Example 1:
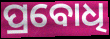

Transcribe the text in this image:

ପ୍ରବୋଧି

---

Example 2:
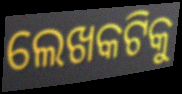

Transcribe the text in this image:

ଲେଖକଟିକୁ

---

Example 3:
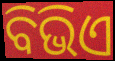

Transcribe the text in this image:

ବିଭିଏ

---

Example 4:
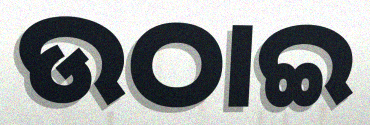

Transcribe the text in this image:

ଉଠାଇ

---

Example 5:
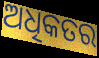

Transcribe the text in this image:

ଅଧିକତର